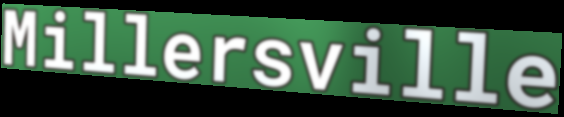
Millersville